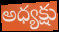
అధ్యక్షు